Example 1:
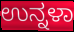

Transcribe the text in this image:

ಉನ್ನಳಾ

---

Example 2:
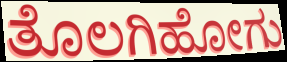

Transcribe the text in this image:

ತೊಲಗಿಹೋಗು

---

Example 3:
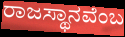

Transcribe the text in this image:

ರಾಜಸ್ಥಾನವೆಂಬ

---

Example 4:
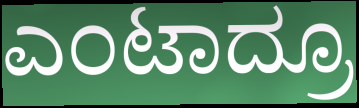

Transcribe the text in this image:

ಎಂಟಾದ್ರೂ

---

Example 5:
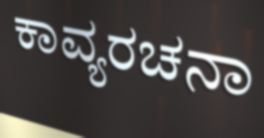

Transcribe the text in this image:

ಕಾವ್ಯರಚನಾ